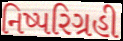
નિષ્પરિગ્રહી